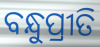
ବନ୍ଧୁପ୍ରୀତି